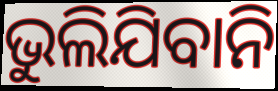
ଭୁଲିଯିବାନି